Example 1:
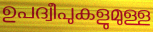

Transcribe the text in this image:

ഉപദ്വീപുകളുമുള്ള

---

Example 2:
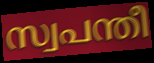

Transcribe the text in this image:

സ്വപന്തീ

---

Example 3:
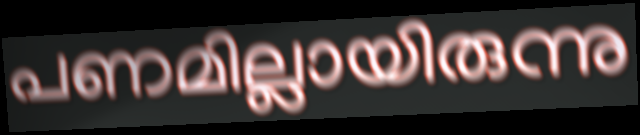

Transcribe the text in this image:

പണമില്ലായിരുന്നു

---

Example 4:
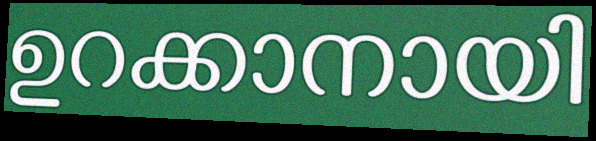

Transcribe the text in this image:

ഉറക്കാനായി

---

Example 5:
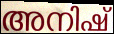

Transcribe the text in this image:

അനിഷ്